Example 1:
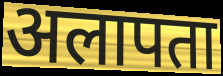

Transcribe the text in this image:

अलापता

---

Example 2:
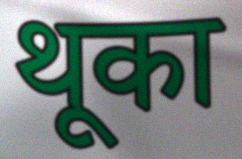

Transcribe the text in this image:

थूका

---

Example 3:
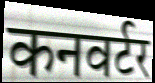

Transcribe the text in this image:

कनवर्टर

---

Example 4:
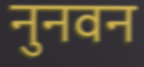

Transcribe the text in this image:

नुनवन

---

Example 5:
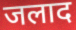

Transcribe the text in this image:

जलाद